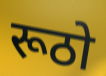
रूठो